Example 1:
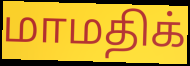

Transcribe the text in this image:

மாமதிக்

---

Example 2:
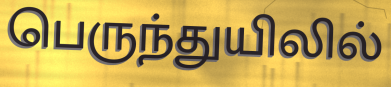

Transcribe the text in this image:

பெருந்துயிலில்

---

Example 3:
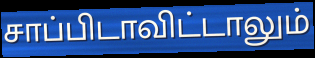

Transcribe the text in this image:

சாப்பிடாவிட்டாலும்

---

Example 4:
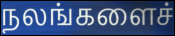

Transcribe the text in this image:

நலங்களைச்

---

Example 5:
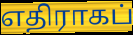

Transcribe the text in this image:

எதிராகப்